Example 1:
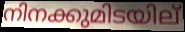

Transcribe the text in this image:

നിനക്കുമിടയില്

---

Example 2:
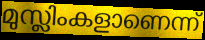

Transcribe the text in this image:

മുസ്ലിംകളാണെന്ന്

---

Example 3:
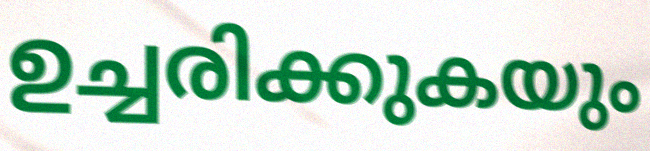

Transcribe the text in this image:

ഉച്ചരിക്കുകയും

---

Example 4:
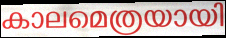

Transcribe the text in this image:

കാലമെത്രയായി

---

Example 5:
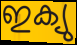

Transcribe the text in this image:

ഇക്യു